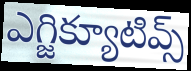
ఎగ్జిక్యూటివ్స్